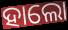
ହାଲୋ